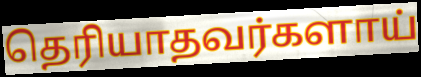
தெரியாதவர்களாய்